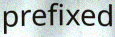
prefixed